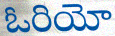
ఓరియో